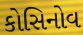
કોસિનોવ